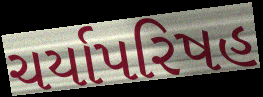
ચર્યાપરિષહ